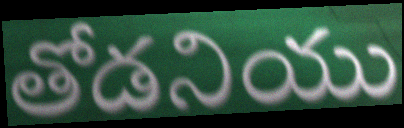
తోడనియు